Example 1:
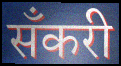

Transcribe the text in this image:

सँकरी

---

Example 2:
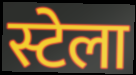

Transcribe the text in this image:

स्टेला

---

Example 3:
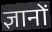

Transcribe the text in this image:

ज्ञानों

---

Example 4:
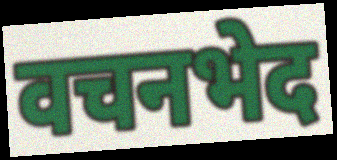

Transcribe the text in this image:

वचनभेद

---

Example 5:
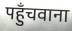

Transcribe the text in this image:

पहुँचवाना